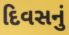
દિવસનું